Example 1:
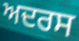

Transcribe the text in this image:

ਅਦਰਸ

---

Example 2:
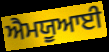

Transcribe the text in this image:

ਐਮਯੂਆਈ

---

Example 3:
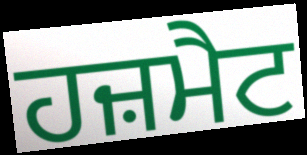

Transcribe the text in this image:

ਹਜ਼ਮੈਟ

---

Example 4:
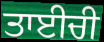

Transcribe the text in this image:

ਤਾਈਚੀ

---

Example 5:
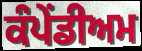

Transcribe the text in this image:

ਕੰਪੇਂਡੀਅਮ